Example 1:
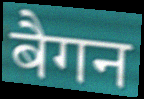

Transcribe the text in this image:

बैगन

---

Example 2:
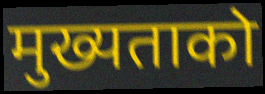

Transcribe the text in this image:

मुख्यताको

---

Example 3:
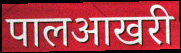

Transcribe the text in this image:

पालआखरी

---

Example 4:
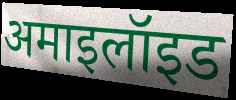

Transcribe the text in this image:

अमाइलॉइड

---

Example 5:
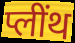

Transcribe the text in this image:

प्लींथ